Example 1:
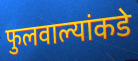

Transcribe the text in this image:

फुलवाल्यांकडे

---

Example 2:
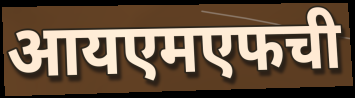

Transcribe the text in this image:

आयएमएफची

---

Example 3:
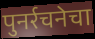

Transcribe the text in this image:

पुनर्रचनेचा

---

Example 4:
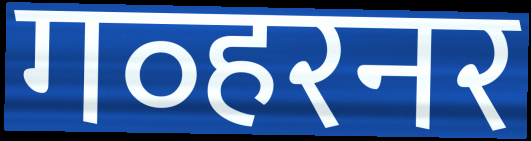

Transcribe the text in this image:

गव्हरनर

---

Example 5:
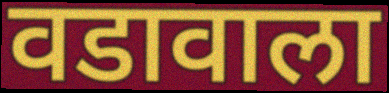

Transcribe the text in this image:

वडावाला